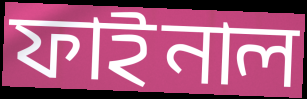
ফাইনাল